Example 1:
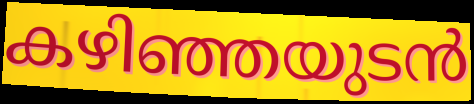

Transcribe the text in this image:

കഴിഞ്ഞയുടൻ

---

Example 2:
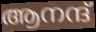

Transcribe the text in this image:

ആനന്ദ്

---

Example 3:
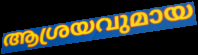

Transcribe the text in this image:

ആശ്രയവുമായ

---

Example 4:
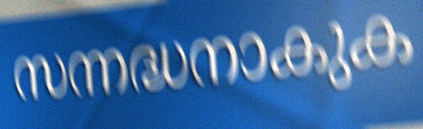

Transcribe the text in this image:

സന്നദ്ധനാകുക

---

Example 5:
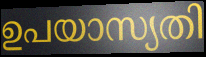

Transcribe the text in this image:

ഉപയാസ്യതി